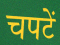
चपटें